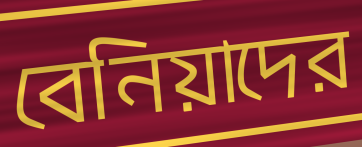
বেনিয়াদের